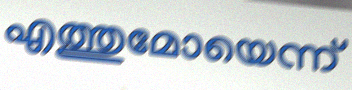
എത്തുമോയെന്ന്